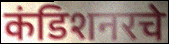
कंडिशनरचे